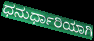
ಧನುರ್ಧಾರಿಯಾಗಿ